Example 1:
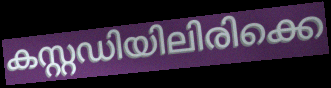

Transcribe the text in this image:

കസ്റ്റഡിയിലിരിക്കെ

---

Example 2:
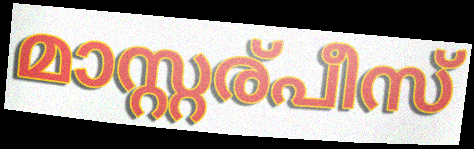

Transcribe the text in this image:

മാസ്റ്റര്പീസ്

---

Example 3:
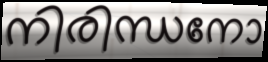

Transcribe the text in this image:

നിരിന്ധനോ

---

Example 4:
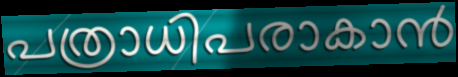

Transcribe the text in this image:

പത്രാധിപരാകാൻ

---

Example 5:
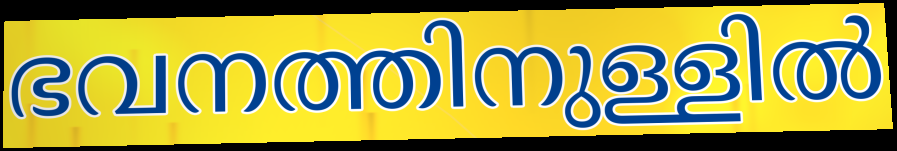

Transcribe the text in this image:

ഭവനത്തിനുള്ളിൽ